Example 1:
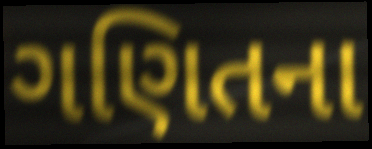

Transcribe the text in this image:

ગણિતના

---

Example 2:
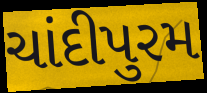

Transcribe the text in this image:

ચાંદીપુરમ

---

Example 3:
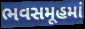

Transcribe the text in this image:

ભવસમૂહમાં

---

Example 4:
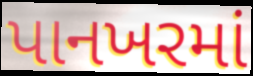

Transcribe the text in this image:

પાનખરમાં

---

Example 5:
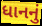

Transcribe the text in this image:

ધાનનું